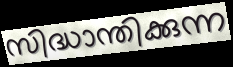
സിദ്ധാന്തിക്കുന്ന